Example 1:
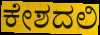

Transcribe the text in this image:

ಕೇಶದಲಿ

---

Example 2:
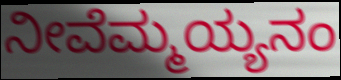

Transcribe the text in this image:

ನೀವೆಮ್ಮಯ್ಯನಂ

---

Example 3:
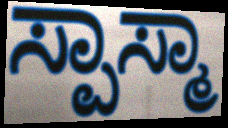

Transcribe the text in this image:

ಸ್ಪಾಸ್ಮಾ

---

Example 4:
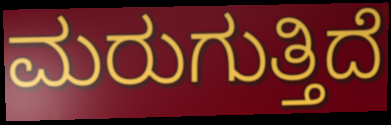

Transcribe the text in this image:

ಮರುಗುತ್ತಿದೆ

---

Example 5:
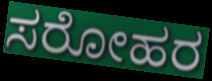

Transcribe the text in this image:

ಸರೋಹರ